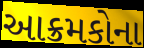
આક્રમકોના